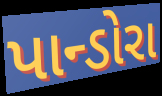
પાન્ડોરા